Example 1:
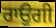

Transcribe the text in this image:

ਰਾਉਗੀ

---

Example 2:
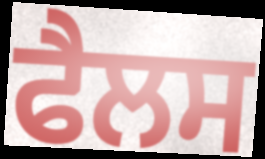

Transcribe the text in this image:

ਫੈਲਸ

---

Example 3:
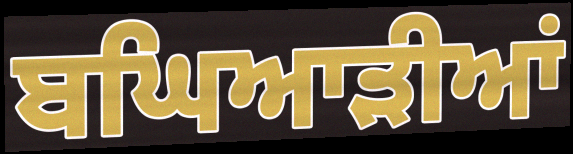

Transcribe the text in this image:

ਬਘਿਆੜੀਆਂ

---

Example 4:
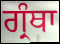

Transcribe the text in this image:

ਗ੍ਰੰਥਾ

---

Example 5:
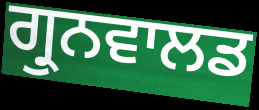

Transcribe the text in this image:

ਗ੍ਰੁਨਵਾਲਡ